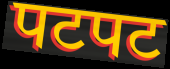
पटपट